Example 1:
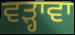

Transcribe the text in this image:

ਵੜ੍ਹਾਵਾ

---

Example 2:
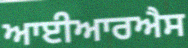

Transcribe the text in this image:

ਆਈਆਰਐਸ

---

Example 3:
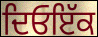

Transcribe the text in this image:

ਦਿਓਇੱਕ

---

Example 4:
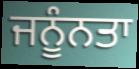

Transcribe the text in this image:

ਜਨੂੰਨਤਾ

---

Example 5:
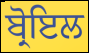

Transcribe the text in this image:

ਬ੍ਰੋਇਲ